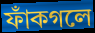
ফাঁকগলে